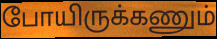
போயிருக்கணும்